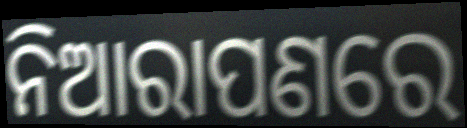
ନିଆରାପଣରେ